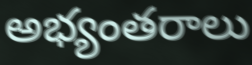
అభ్యంతరాలు